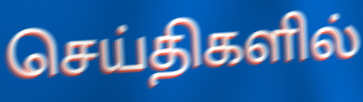
செய்திகளில்